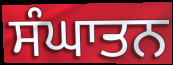
ਸੰਘਾਤਨ